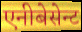
एनीबेसेन्ट